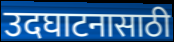
उदघाटनासाठी